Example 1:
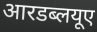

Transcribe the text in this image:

आरडब्लयूए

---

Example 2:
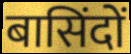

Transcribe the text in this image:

बासिंदों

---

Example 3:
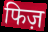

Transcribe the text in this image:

फिज़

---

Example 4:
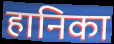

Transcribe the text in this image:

हानिका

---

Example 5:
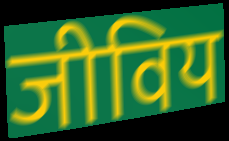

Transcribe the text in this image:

जीविय